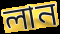
লান